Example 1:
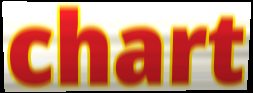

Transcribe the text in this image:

chart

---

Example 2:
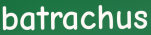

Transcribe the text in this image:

batrachus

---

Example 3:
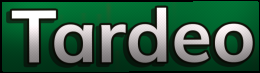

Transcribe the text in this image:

Tardeo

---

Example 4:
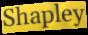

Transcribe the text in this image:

Shapley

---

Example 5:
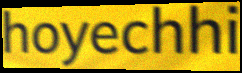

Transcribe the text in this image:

hoyechhi